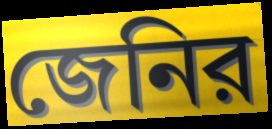
জেনির